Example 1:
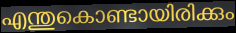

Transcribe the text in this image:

എന്തുകൊണ്ടായിരിക്കും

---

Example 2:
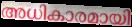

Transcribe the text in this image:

അധികാരമായി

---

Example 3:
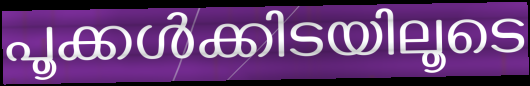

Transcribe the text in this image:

പൂക്കൾക്കിടയിലൂടെ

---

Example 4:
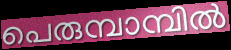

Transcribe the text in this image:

പെരുമ്പാമ്പിൽ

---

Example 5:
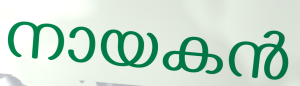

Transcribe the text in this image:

നായകൻ